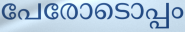
പേരോടൊപ്പം